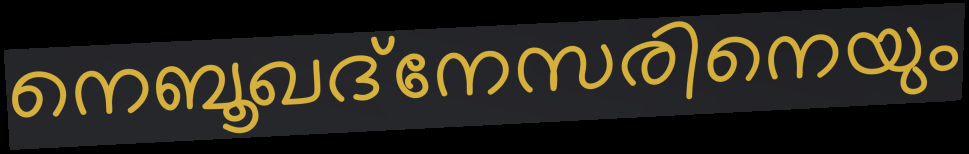
നെബൂഖദ്നേസരിനെയും